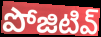
పోజిటివ్